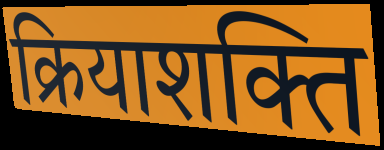
क्रियाशक्ति